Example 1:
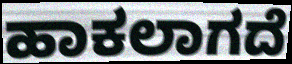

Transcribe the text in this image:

ಹಾಕಲಾಗದೆ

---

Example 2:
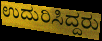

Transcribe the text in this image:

ಉದುರಿಸಿದ್ದರು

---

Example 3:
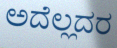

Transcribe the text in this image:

ಅದೆಲ್ಲದರ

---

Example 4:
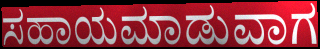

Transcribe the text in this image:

ಸಹಾಯಮಾಡುವಾಗ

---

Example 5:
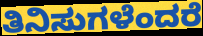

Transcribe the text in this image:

ತಿನಿಸುಗಳೆಂದರೆ